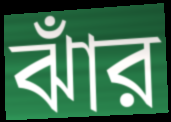
ঝাঁর